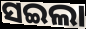
ସଇଲା